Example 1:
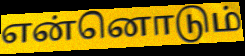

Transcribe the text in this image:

என்னொடும்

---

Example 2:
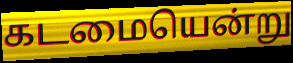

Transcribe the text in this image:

கடமையென்று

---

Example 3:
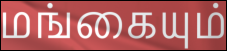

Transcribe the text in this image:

மங்கையும்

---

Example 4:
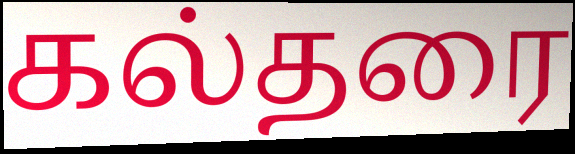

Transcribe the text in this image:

கல்தரை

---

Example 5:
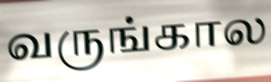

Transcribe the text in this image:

வருங்கால